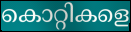
കൊറ്റികളെ